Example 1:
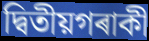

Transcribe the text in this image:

দ্বিতীয়গৰাকী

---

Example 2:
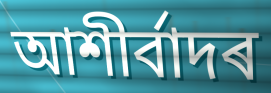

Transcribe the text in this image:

আশীৰ্বাদৰ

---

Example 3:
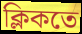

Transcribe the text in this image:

ক্লিকতে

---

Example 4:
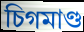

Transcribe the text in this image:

চিগমাণ্ড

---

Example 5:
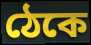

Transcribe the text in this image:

ঠেকে